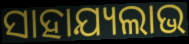
ସାହାଯ୍ୟଲାଭ